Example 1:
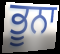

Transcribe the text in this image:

ਭੂਨਾ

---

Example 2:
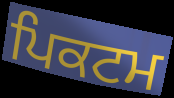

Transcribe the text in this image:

ਪਿਕਟਮ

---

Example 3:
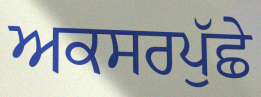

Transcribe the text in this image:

ਅਕਸਰਪੁੱਛੇ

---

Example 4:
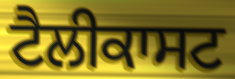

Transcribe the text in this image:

ਟੈਲੀਕਾਸਟ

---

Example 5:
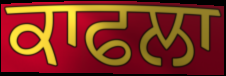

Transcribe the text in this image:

ਕਾਫਲਾ